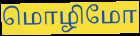
மொழிமோ